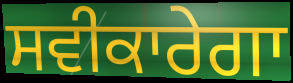
ਸਵੀਕਾਰੇਗਾ